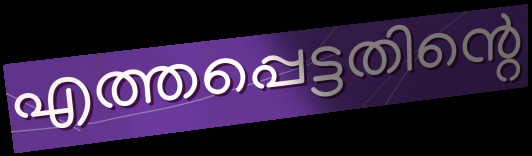
എത്തപ്പെട്ടതിന്റെ